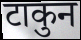
टाकुन